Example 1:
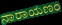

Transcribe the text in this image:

ನಾರಾಯಣಂ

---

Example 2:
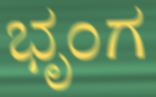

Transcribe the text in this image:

ಭೃಂಗ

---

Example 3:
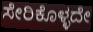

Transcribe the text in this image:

ಸೇರಿಕೊಳ್ಳದೇ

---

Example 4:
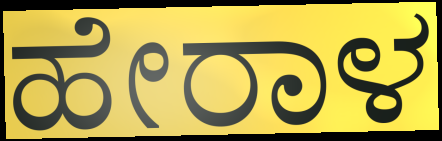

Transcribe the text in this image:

ಹೇರಾಳ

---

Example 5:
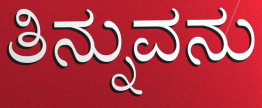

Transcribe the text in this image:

ತಿನ್ನುವನು